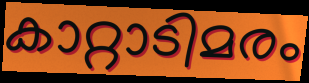
കാറ്റാടിമരം